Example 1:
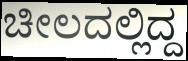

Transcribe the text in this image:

ಚೀಲದಲ್ಲಿದ್ದ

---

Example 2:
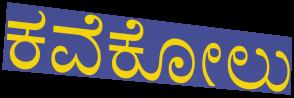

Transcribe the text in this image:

ಕವೆಕೋಲು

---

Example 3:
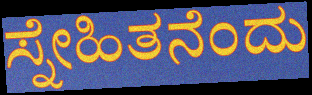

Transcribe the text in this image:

ಸ್ನೇಹಿತನೆಂದು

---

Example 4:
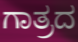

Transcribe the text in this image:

ಗಾತ್ರದ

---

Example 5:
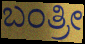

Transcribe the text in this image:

ಬಂತ್ರೀ